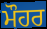
ਮੌਹਰ